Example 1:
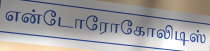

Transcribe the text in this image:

என்டோரோகோலிடிஸ்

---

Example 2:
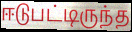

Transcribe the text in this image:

ஈடுபட்டிருந்த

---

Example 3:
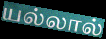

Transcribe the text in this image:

யல்லால்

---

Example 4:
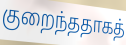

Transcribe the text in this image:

குறைந்ததாகத்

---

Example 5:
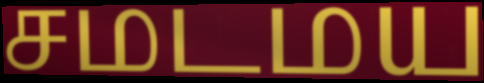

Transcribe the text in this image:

சமடமய